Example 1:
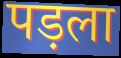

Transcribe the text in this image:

पड़ला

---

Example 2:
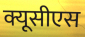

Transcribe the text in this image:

क्यूसीएस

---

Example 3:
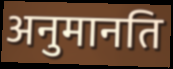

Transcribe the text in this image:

अनुमानति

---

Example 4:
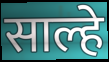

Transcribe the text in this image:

साल्हे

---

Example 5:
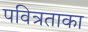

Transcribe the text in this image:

पवित्रताका